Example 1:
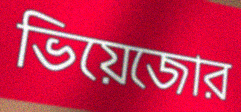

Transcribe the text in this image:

ভিয়েজোর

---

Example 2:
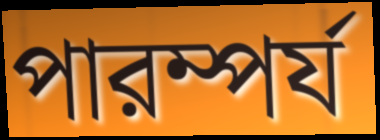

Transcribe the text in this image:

পারম্পর্য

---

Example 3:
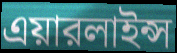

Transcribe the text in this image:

এয়ারলাইন্স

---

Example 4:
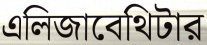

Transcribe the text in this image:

এলিজাবেথিটার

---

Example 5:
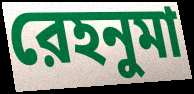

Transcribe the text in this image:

রেহনুমা